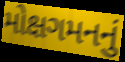
મોક્ષગમનનું